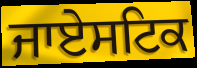
ਜਾਏਸਟਿਕ